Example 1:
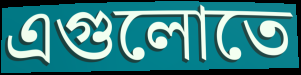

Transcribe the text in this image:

এগুলোতে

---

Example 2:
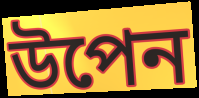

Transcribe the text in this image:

উপেন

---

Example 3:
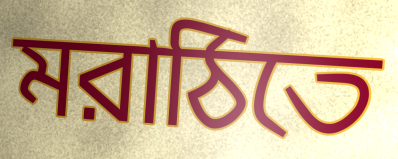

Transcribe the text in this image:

মরাঠিতে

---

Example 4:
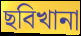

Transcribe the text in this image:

ছবিখানা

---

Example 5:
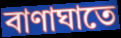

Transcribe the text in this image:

বাণাঘাতে